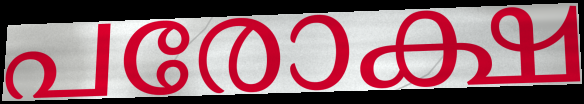
പരോക്ഷ